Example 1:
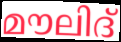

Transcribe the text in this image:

മൗലിദ്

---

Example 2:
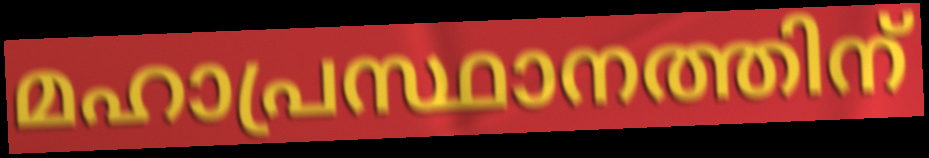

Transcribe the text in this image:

മഹാപ്രസ്ഥാനത്തിന്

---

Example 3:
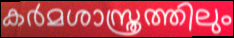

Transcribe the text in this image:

കർമശാസ്ത്രത്തിലും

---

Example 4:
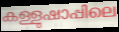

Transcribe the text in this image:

കള്ളുഷാപ്പിലെ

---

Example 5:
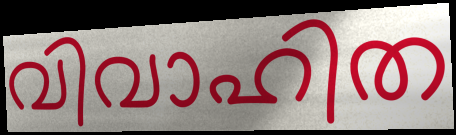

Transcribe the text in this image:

വിവാഹിത